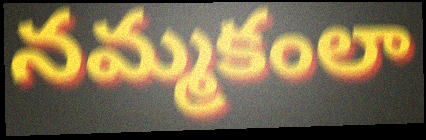
నమ్మకంలా